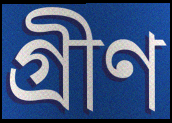
গ্ৰীণ